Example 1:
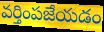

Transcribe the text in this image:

వర్తింపజేయడం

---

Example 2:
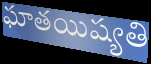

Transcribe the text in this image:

ఘాతయిష్యతి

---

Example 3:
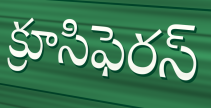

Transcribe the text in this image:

క్రూసిఫెరస్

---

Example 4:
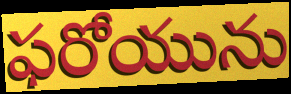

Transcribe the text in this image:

ఫరోయును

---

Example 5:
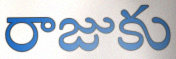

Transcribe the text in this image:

రాజుకు